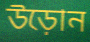
উড়োন